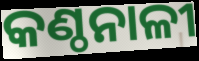
କଣ୍ଠନାଳୀ